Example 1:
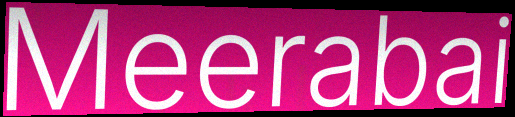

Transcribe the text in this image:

Meerabai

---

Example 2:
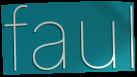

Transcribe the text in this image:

faul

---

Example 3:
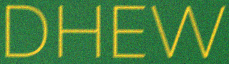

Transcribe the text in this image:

DHEW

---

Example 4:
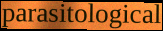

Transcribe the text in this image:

parasitological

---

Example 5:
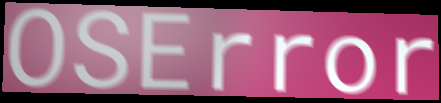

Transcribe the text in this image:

OSError